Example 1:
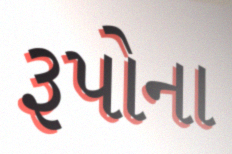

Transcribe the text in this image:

રૂપોના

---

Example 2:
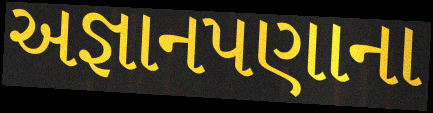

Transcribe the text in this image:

અજ્ઞાનપણાના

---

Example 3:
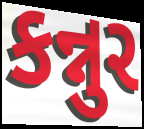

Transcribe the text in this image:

કન્નુર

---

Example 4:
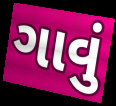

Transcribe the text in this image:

ગાવું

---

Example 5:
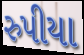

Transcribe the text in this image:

રુપીયા